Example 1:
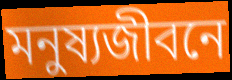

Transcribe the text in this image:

মনুষ্যজীবনে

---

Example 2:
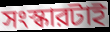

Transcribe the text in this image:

সংস্কারটাই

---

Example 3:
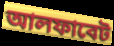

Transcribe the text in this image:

আলফাবেট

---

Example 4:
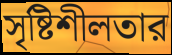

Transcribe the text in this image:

সৃষ্টিশীলতার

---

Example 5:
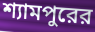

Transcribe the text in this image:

শ্যামপুরের